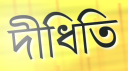
দীধিতি